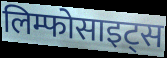
लिम्फोसाइट्स